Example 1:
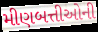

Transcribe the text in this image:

મીણબત્તીઓની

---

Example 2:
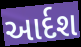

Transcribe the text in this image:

આર્દશ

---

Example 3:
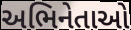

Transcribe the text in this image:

અભિનેતાઓ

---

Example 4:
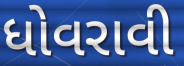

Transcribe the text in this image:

ધોવરાવી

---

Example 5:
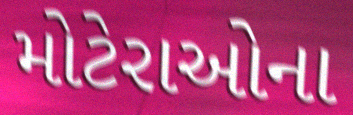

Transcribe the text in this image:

મોટેરાઓના